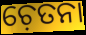
ଚ଼େତନା